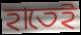
হাতেই